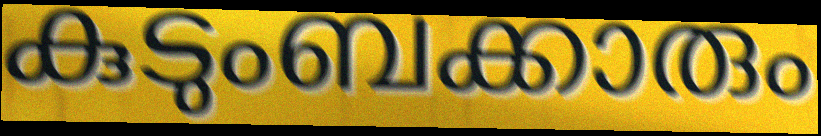
കുടുംബക്കാരും